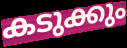
കടുക്കും